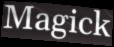
Magick